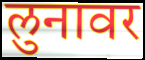
लुनावर